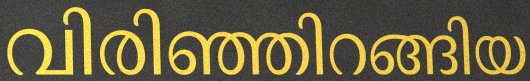
വിരിഞ്ഞിറങ്ങിയ